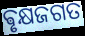
ଵୃକ୍ଷଜଗତ